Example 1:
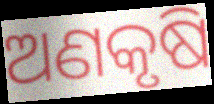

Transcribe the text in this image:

ଅଣକୃଷି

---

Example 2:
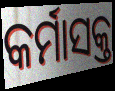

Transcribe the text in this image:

କର୍ମାସକ୍ତ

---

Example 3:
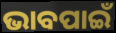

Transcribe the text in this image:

ଭାବପାଇଁ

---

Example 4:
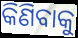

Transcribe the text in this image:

କିଣିବାକୁ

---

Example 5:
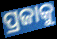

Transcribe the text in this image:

ପ୍ରଜାକୁ